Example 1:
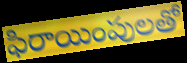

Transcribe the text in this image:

ఫిరాయింపులతో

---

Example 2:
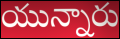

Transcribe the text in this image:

యున్నారు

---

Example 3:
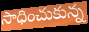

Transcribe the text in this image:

సాధించుకున్న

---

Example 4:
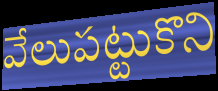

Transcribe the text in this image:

వేలుపట్టుకొని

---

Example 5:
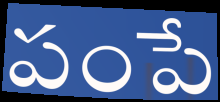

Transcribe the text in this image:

పంపే